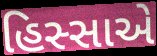
હિસ્સાએ